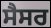
ਸੈਸਰ